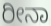
ರೀನಾ